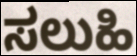
ಸಲುಹಿ